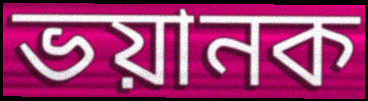
ভয়ানক